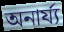
অনাৰ্য্য